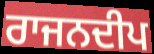
ਰਾਜਨਦੀਪ